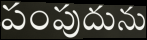
పంపుదును